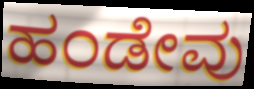
ಹಂಡೇವು